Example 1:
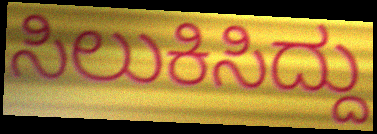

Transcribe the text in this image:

ಸಿಲುಕಿಸಿದ್ದು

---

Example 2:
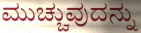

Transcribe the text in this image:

ಮುಚ್ಚುವುದನ್ನು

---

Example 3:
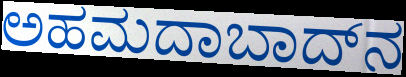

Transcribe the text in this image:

ಅಹಮದಾಬಾದ್‌ನ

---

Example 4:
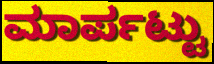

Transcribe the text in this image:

ಮಾರ್ಪಟ್ಟು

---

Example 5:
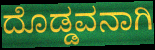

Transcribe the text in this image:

ದೊಡ್ಡವನಾಗಿ